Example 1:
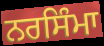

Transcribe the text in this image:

ਨਰਸਿੰਮਾ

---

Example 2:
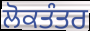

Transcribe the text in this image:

ਲੋਕਤੰਤਰ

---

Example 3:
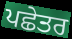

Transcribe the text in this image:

ਪਛੇਤਰ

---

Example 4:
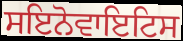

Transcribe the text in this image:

ਸਇਨੋਵਾਇਟਿਸ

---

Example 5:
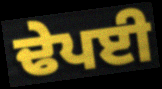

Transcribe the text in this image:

ਢੇਪਈ